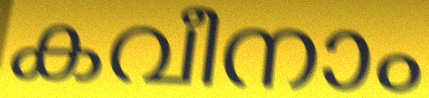
കവീനാം